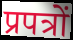
प्रपत्रों